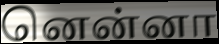
னென்னா